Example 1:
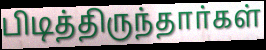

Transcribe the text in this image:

பிடித்திருந்தார்கள்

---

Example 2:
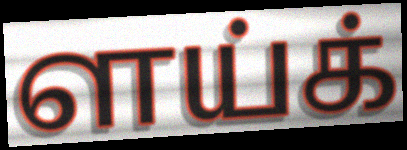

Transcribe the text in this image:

ளய்க்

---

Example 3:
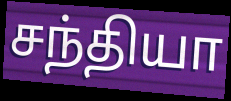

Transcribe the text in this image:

சந்தியா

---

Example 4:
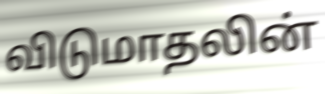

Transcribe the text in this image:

விடுமாதலின்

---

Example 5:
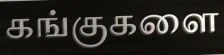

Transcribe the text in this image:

கங்குகளை